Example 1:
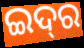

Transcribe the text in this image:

ଇଦ୍‍ର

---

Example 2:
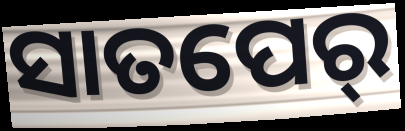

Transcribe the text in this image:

ସାତପେର୍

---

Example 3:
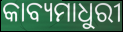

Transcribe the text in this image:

କାବ୍ୟମାଧୁରୀ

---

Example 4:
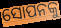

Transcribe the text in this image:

ସୋପନକୁ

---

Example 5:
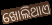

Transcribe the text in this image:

ଖୋଲିଥାଏ